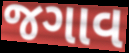
જગાવ